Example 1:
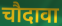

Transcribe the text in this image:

चौदावा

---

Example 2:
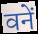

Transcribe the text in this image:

वनें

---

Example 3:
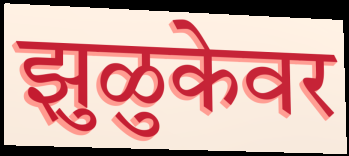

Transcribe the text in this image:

झुळुकेवर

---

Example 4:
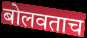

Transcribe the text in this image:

बोलवताच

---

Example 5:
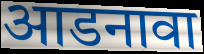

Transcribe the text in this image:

आडनावा